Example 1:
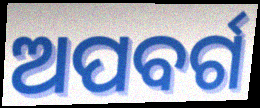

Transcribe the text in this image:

ଅପବର୍ଗ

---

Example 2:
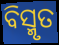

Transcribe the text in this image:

ବିସ୍ମୃତ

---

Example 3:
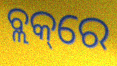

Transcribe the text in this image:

ବ୍ଲକ୍‌ରେ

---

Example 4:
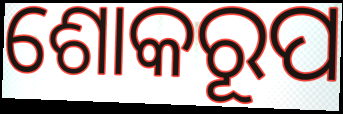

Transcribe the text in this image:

ଶୋକରୂପ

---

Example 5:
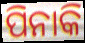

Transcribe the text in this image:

ପିନାକି